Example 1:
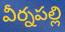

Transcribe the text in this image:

వీర్నపల్లి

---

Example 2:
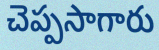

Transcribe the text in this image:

చెప్పసాగారు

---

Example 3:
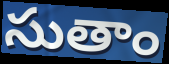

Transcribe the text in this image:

సుతాం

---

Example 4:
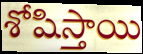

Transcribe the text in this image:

శోషిస్తాయి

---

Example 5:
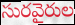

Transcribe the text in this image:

సురవైరుల